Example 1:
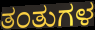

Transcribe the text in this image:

ತಂತುಗಳ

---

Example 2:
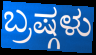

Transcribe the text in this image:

ಬ್ರಷ್ಗಳು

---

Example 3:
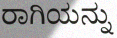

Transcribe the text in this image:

ರಾಗಿಯನ್ನು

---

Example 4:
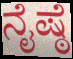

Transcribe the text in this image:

ನೈಷ್ಠೆ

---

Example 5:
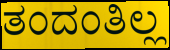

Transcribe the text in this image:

ತಂದಂತಿಲ್ಲ